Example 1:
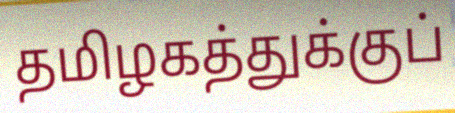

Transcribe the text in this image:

தமிழகத்துக்குப்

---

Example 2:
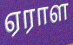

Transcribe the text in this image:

ஏராள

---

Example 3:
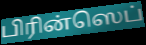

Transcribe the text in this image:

பிரின்ஸெப்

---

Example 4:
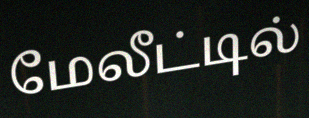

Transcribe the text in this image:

மேலீட்டில்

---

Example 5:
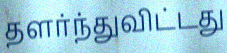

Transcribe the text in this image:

தளர்ந்துவிட்டது